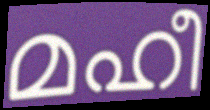
മഹീ